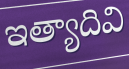
ఇత్యాదివి